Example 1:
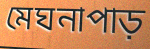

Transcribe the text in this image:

মেঘনাপাড়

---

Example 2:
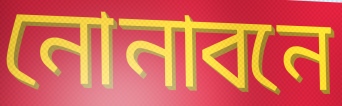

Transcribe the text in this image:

নোনাবনে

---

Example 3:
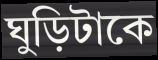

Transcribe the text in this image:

ঘুড়িটাকে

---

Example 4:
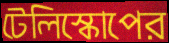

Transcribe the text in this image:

টেলিস্কোপের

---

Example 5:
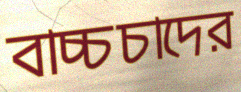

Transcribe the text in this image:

বাচ্চচাদের